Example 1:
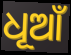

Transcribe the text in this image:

ଧୂଆଁ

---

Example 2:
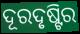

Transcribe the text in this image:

ଦୂରଦୃଷ୍ଟିର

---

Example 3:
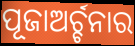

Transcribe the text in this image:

ପୂଜାଅର୍ଚ୍ଚନାର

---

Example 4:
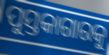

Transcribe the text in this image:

ପୁସ୍ତକାଗାରକୁ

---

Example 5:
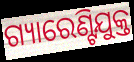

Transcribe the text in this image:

ଗ୍ୟାରେଣ୍ଟିଯୁକ୍ତ